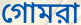
গোমরা